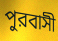
পুরবাসী